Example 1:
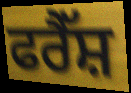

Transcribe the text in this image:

ਫਰੈੱਸ਼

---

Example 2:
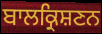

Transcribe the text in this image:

ਬਾਲਕ੍ਰਿਸ਼ਣਨ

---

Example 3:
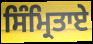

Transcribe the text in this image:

ਸਿੰਮ੍ਰਿਤਾਏ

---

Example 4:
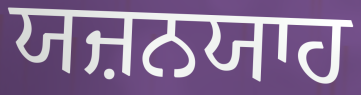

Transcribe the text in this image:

ਯਜ਼ਨਯਾਹ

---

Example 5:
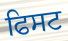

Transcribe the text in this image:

ਫਿਸਟ